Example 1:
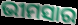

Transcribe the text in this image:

ଭୀମସାର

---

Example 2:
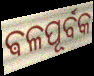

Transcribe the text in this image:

ଵଳପୂର୍ବକ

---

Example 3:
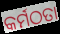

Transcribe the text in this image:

କର୍ମଠତା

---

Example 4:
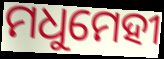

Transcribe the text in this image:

ମଧୁମେହୀ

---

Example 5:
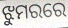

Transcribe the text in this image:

ଝୁମରରେ